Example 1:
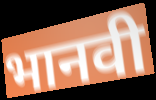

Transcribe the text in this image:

भानवी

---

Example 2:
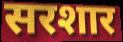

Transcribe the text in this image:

सरशार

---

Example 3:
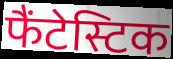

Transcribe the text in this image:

फैंटेस्टिक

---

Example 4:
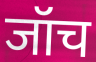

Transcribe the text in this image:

जॉच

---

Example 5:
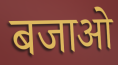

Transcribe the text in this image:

बजाओ